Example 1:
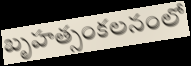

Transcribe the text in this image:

బృహత్సంకలనంలో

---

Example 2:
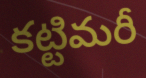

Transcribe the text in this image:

కట్టిమరీ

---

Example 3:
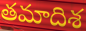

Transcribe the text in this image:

తమాదిశ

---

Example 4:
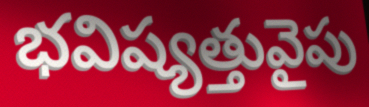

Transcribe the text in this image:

భవిష్యత్తువైపు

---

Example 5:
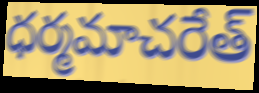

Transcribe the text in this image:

ధర్మమాచరేత్